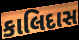
કાલિદાસ